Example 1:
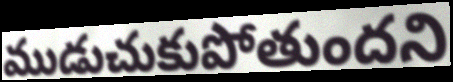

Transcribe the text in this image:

ముడుచుకుపోతుందని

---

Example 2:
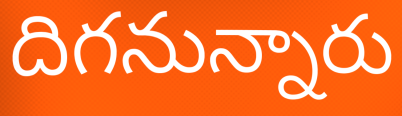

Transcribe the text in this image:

దిగనున్నారు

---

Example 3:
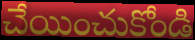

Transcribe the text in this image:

చేయించుకోండి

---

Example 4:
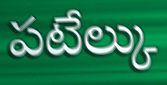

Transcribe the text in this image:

పటేల్కు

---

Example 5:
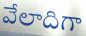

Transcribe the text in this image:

వేలాదిగా